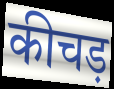
कीचड़